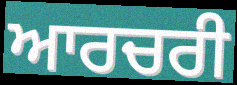
ਆਰਚਰੀ